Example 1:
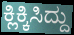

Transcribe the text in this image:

ಕ್ಲಿಕ್ಕಿಸಿದ್ದು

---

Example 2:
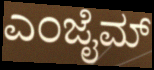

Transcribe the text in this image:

ಎಂಜೈಮ್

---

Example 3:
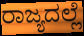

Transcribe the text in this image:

ರಾಜ್ಯದಲ್ಲೆ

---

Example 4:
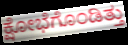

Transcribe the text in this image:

ಕ್ಷೋಭೆಗೊಂಡಿತ್ತು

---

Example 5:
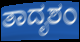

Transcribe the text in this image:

ತಾದೃಶಂ